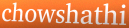
chowshathi